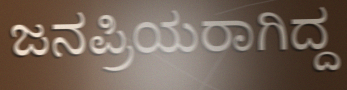
ಜನಪ್ರಿಯರಾಗಿದ್ದ